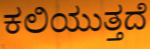
ಕಲಿಯುತ್ತದೆ